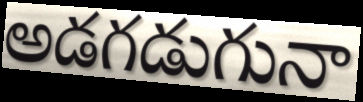
అడగడుగునా